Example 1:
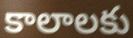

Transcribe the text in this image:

కాలాలకు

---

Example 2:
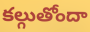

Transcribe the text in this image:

కల్గుతోందా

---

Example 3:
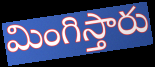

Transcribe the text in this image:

మింగిస్తారు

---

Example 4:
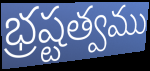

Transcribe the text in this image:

భ్రష్టత్వము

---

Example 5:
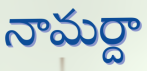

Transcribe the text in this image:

నామర్దా